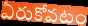
ఏరుకోవటం